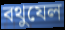
বথুযেল